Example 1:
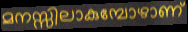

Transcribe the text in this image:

മനസ്സിലാകുമ്പോഴാണ്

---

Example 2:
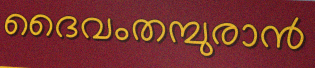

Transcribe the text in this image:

ദൈവംതമ്പുരാൻ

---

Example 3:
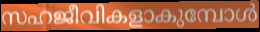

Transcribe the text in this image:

സഹജീവികളാകുമ്പോൾ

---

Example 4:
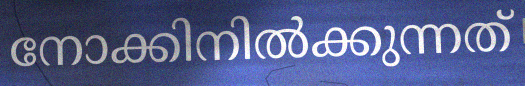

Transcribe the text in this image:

നോക്കിനിൽക്കുന്നത്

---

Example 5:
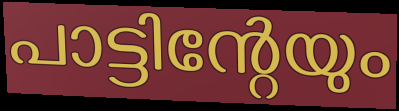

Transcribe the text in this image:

പാട്ടിന്റേയും